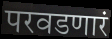
परवडणारं